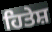
ਹਿਤੇਸ਼